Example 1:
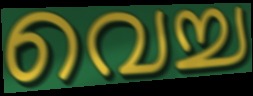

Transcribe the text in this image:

വെച്ച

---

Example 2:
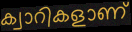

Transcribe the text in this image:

ക്വാറികളാണ്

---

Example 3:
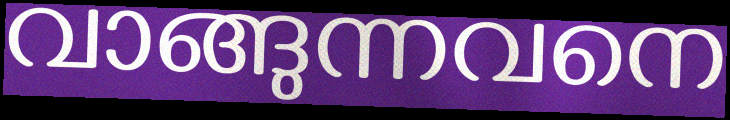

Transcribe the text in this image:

വാങ്ങുന്നവനെ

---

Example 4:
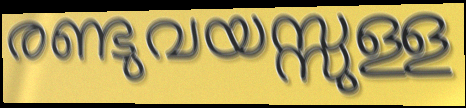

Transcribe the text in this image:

രണ്ടുവയസ്സുള്ള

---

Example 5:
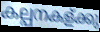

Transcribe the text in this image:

കല്പനകള്ക്കു